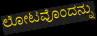
ಲೋಟವೊಂದನ್ನು